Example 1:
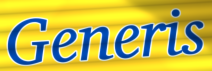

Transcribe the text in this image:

Generis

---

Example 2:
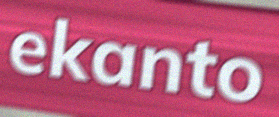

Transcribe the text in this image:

ekanto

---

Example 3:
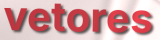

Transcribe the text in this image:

vetores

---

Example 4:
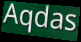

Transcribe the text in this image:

Aqdas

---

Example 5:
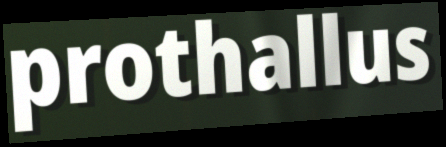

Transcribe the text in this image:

prothallus